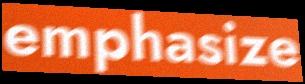
emphasize